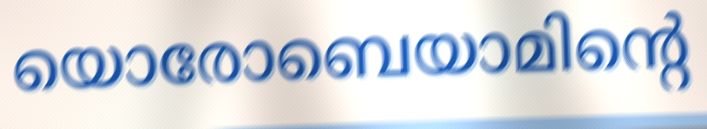
യൊരോബെയാമിന്റെ